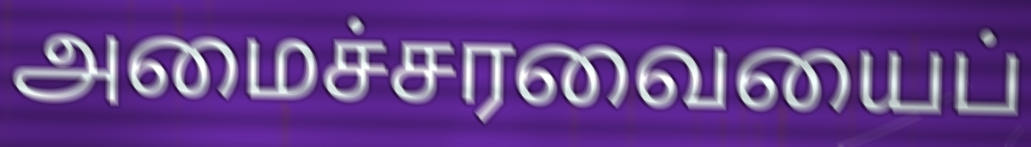
அமைச்சரவையைப்